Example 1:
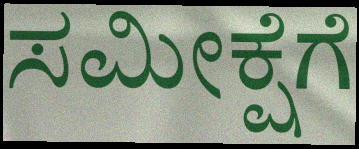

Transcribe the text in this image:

ಸಮೀಕ್ಷೆಗೆ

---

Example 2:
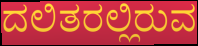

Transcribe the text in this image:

ದಲಿತರಲ್ಲಿರುವ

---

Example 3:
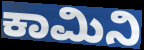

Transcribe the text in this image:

ಕಾಮಿನಿ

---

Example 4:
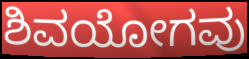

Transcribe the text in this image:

ಶಿವಯೋಗವು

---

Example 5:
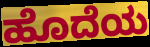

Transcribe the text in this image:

ಹೊದೆಯ